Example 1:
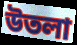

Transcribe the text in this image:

উতলা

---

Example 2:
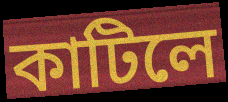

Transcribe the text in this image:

কাটিলে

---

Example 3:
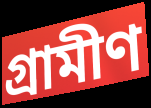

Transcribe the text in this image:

গ্ৰামীণ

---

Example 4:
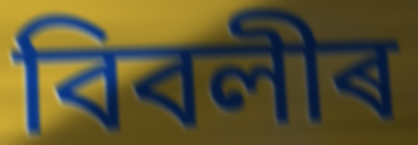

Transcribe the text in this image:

বিবলীৰ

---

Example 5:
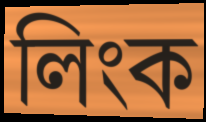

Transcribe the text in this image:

লিংক